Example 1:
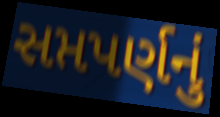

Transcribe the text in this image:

સપ્તપર્ણનું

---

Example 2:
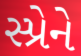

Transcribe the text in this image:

સ્પ્રેને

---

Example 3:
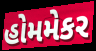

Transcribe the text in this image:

હોમમેકર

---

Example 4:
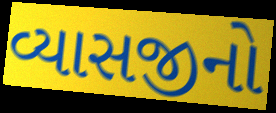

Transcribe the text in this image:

વ્યાસજીનો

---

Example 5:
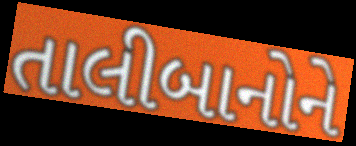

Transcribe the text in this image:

તાલીબાનોને